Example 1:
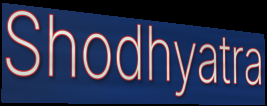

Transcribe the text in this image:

Shodhyatra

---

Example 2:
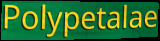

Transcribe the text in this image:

Polypetalae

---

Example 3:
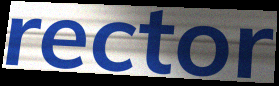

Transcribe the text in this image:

rector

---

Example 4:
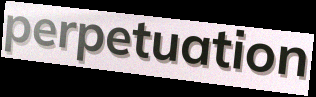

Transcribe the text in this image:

perpetuation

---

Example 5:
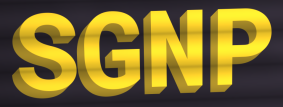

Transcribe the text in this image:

SGNP